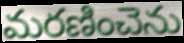
మరణించెను